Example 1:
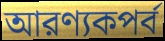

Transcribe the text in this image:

আরণ্যকপর্ব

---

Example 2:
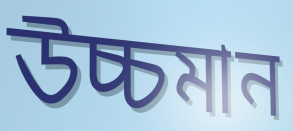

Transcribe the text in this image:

উচ্চমান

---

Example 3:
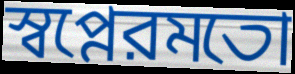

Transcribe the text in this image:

স্বপ্নেরমতো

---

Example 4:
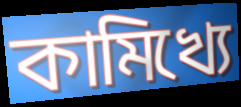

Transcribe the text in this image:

কামিখ্যে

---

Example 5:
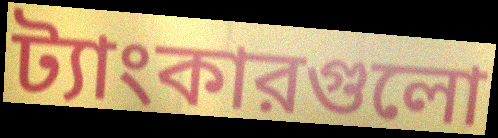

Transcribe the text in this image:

ট্যাংকারগুলো